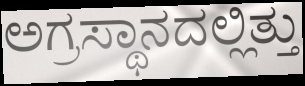
ಅಗ್ರಸ್ಥಾನದಲ್ಲಿತ್ತು